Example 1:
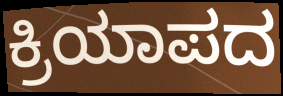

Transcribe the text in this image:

ಕ್ರಿಯಾಪದ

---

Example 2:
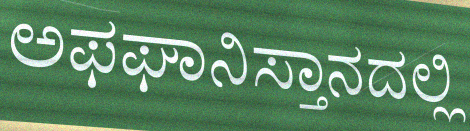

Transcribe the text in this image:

ಅಫಘಾನಿಸ್ತಾನದಲ್ಲಿ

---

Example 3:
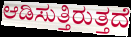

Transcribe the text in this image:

ಆಡಿಸುತ್ತಿರುತ್ತದೆ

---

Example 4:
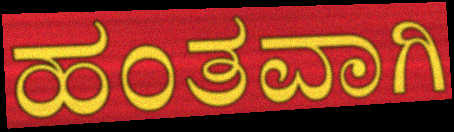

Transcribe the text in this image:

ಹಂತವಾಗಿ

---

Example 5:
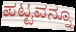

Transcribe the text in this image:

ಪಟ್ಟವನ್ನೂ